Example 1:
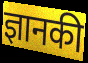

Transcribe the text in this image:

ज्ञानकी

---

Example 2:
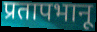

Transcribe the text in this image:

प्रतापभानू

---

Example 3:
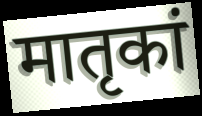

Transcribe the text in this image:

मातृकां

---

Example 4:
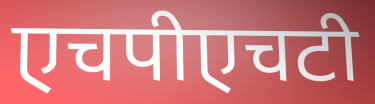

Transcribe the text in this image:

एचपीएचटी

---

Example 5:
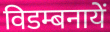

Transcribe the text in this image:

विडम्बनायें